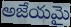
అజేయమై